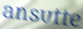
ansutte